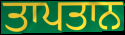
ਤਾਪਤਾਨ